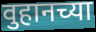
वुहानच्या